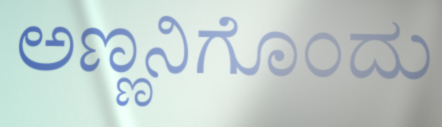
ಅಣ್ಣನಿಗೊಂದು